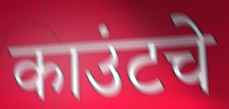
काउंटचे